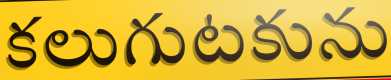
కలుగుటకును